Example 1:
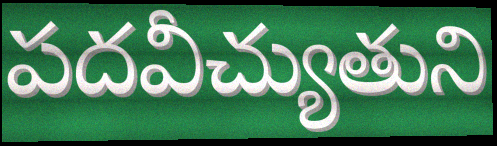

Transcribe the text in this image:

పదవీచ్యుతుని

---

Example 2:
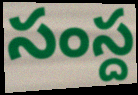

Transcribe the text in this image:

సంస్ద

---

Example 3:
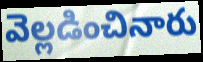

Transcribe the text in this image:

వెల్లడించినారు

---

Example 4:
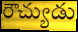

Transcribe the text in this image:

రౌచ్యుడు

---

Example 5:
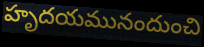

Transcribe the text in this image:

హృదయమునందుంచి